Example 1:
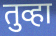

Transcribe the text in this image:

तुव्हा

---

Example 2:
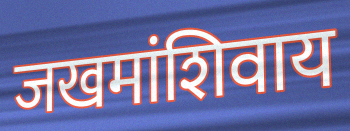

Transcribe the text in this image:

जखमांशिवाय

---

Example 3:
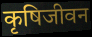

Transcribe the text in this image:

कृषिजीवन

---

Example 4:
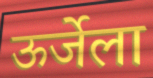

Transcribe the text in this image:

ऊर्जेला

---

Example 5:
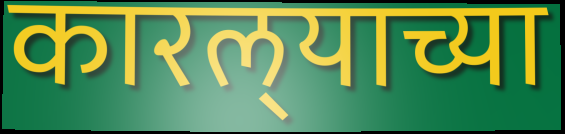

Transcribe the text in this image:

कारल्याच्या